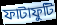
ফাটাফুটি